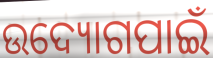
ଉଦ୍ୟୋଗପାଇଁ